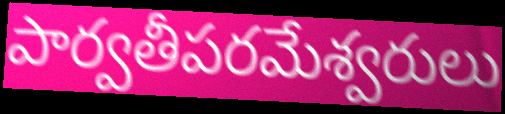
పార్వతీపరమేశ్వరులు